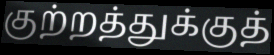
குற்றத்துக்குத்